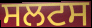
ਸਲਟਸ